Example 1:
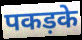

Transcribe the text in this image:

पकड़के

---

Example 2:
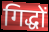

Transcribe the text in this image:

गिद्धों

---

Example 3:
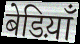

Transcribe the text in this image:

बेडिय़ाँ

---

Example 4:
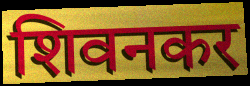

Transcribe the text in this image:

शिवनकर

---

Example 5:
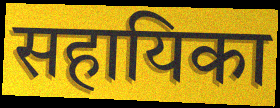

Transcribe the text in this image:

सहायिका